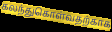
கலந்துகொள்வதற்காக